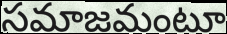
సమాజమంటూ